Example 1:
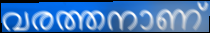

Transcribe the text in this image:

വരത്തനാണ്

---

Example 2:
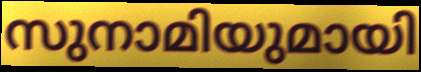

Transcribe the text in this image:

സുനാമിയുമായി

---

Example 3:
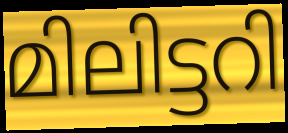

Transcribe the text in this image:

മിലിട്ടറി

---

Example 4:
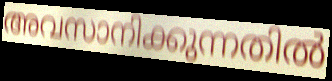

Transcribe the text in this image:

അവസാനിക്കുന്നതിൽ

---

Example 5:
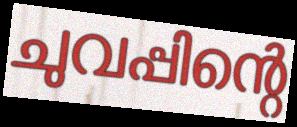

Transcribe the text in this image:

ചുവപ്പിന്റെ